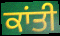
ਕਾਂਤੀ